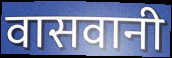
वासवानी